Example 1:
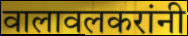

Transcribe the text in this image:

वालावलकरांनी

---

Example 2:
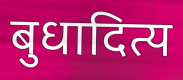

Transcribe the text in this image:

बुधादित्य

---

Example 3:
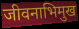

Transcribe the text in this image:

जीवनाभिमुख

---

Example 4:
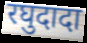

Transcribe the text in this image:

रघुदादा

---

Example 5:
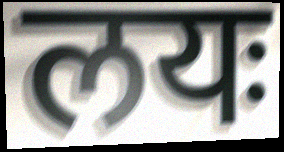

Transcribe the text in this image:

लयः